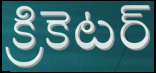
క్రికెటర్